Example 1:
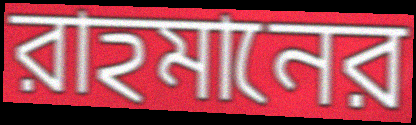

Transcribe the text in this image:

রাহমানের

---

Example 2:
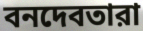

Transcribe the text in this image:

বনদেবতারা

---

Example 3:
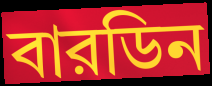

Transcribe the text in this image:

বারডিন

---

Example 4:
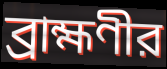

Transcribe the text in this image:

ব্রাহ্মণীর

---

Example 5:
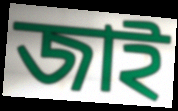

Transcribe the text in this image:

জাই